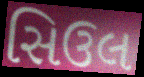
સિઉલ